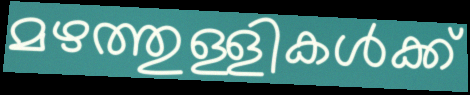
മഴത്തുള്ളികൾക്ക്